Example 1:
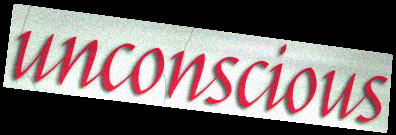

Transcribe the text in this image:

unconscious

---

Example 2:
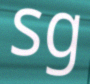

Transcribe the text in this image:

sg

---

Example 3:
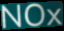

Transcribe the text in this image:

NOx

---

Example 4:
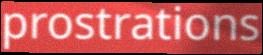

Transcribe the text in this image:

prostrations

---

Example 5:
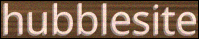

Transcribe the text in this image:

hubblesite